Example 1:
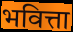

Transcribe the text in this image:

भवित्ता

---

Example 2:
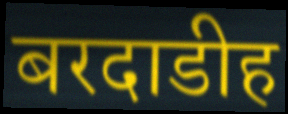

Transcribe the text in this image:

बरदाडीह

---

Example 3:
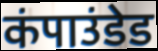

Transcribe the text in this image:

कंपाउंडेड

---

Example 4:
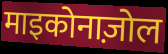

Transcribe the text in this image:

माइकोनाज़ोल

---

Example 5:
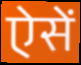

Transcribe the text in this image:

ऐसें